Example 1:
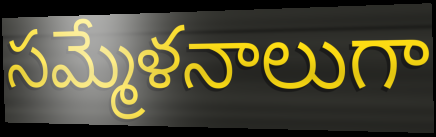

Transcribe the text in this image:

సమ్మేళనాలుగా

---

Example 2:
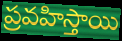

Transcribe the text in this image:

ప్రవహిస్తాయి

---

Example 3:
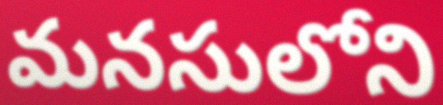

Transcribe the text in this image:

మనసులోని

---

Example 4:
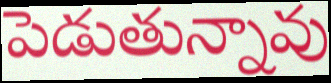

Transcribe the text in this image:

పెడుతున్నావు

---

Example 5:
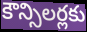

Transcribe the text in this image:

కౌన్సిలర్లకు